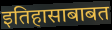
इतिहासाबाबत